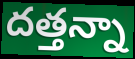
దత్తన్నా